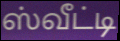
ஸ்வீட்டி